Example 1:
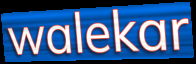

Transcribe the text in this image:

walekar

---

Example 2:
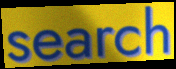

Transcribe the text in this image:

search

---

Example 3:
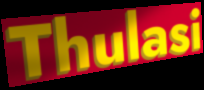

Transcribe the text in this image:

Thulasi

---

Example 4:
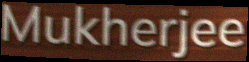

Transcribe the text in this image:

Mukherjee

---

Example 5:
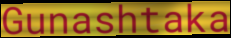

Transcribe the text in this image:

Gunashtaka